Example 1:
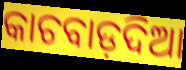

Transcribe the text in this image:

କାଚବାଡ଼ଦିଆ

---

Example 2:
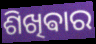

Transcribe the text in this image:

ଶିଖିଵାର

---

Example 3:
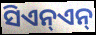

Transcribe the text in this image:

ସିଏନ୍ଏନ୍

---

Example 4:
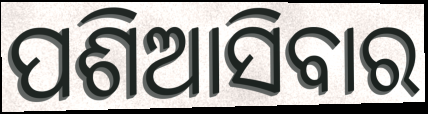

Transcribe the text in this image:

ପଶିଆସିବାର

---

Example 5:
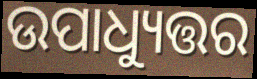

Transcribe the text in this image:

ଉପାଧ୍ୟୁତ୍ତର